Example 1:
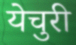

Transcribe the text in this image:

येचुरी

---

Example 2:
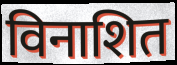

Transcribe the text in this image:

विनाशित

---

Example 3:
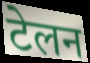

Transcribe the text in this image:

टेलन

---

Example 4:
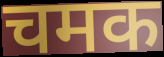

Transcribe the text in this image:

चमक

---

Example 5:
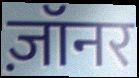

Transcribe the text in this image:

ज़ॉनर